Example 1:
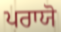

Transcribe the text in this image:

ਪਰਾਯੋ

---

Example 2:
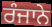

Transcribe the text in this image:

ਰੰਜਾਨੇ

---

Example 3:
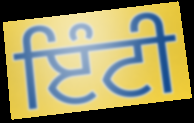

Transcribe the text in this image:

ਇੰਟੀ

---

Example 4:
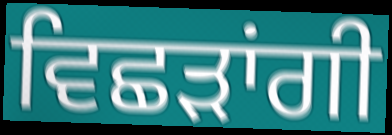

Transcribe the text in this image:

ਵਿਛੜਾਂਗੀ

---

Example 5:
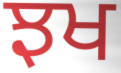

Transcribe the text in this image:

ਝਖ